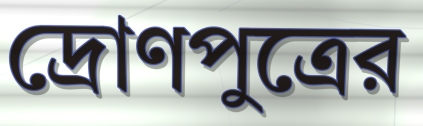
দ্রোণপুত্রের